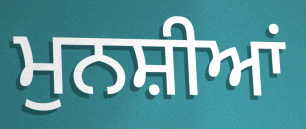
ਮੁਨਸ਼ੀਆਂ